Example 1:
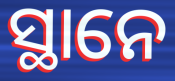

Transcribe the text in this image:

ସ୍ଥାନେ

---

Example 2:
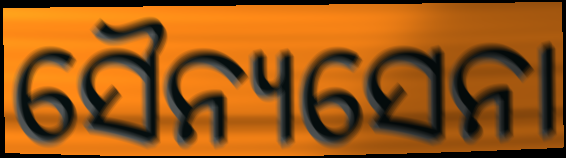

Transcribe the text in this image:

ସୈନ୍ୟସେନା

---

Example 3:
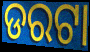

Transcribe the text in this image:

ଡରଟା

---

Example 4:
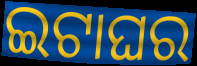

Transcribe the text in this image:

ଇଟାଘର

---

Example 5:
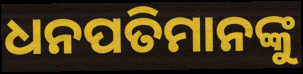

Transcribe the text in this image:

ଧନପତିମାନଙ୍କୁ